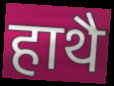
हाथै